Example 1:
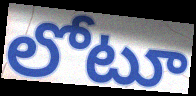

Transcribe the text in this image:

లోటూ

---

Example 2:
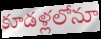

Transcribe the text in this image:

కూడళ్లలోనూ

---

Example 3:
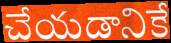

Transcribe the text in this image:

చేయడానికే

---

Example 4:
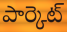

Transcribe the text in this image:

పార్కెట్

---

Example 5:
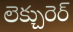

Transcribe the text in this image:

లెక్చురెర్